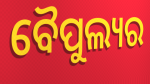
ବୈପୁଲ୍ୟର